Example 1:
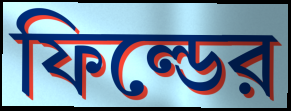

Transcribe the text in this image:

ফিল্ডের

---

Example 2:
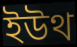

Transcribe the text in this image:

ইউথ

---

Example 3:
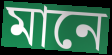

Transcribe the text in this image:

মানে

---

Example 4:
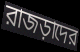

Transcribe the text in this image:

রাজড়াদের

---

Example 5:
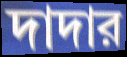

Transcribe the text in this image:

দাদার